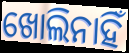
ଖୋଲିନାହିଁ